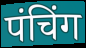
पंचिंग